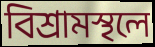
বিশ্রামস্থলে